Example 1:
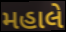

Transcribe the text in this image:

મહાલે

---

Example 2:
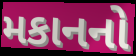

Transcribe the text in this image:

મકાનનો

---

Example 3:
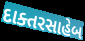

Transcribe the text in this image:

દાક્તરસાહેબ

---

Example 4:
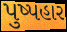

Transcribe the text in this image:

પુષ્પહાર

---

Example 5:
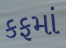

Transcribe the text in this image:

કફમાં